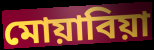
মোয়াবিয়া